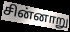
சின்னாறு